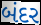
બંદર